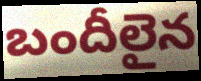
బందీలైన